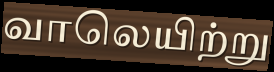
வாலெயிற்று